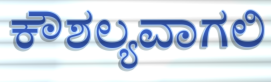
ಕೌಶಲ್ಯವಾಗಲಿ